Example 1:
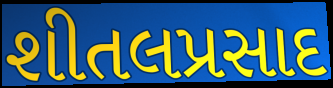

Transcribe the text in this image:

શીતલપ્રસાદ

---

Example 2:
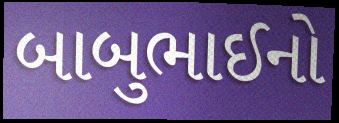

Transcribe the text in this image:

બાબુભાઈનો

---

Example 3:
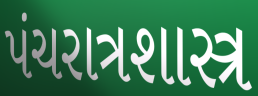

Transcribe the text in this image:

પંચરાત્રશાસ્ત્ર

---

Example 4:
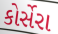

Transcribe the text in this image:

કોર્સેરા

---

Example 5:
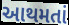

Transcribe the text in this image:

આથમતાં